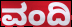
ವಂದಿ